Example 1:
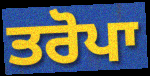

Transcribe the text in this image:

ਤਰੋਪਾ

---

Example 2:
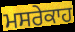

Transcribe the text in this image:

ਮਸਰੇਕਾਹ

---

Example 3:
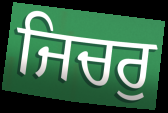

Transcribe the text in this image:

ਜਿਚਰੁ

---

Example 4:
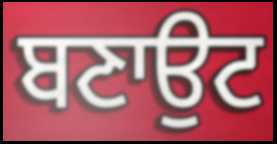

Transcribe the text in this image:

ਬਣਾਉਟ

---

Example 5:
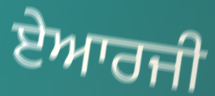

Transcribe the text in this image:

ਏਆਰਜੀ